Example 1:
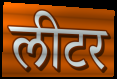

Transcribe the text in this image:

लीटर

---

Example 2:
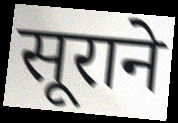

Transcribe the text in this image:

सूराने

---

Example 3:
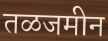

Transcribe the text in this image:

तळजमीन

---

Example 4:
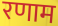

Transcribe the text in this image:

रणाम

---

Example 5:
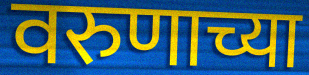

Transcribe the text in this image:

वरुणाच्या